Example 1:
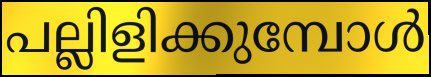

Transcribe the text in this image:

പല്ലിളിക്കുമ്പോൾ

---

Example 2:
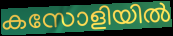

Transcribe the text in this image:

കസോളിയിൽ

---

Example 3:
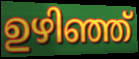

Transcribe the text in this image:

ഉഴിഞ്ഞ്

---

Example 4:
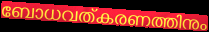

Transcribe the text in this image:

ബോധവത്കരണത്തിനും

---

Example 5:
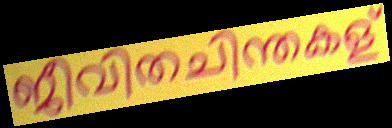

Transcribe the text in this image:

ജീവിതചിന്തകള്